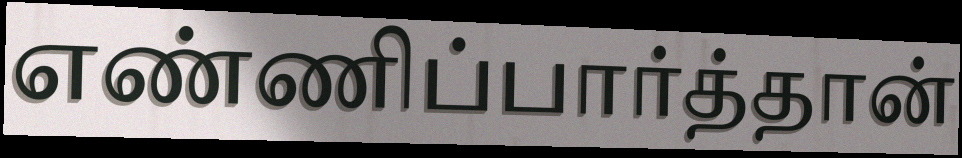
எண்ணிப்பார்த்தான்